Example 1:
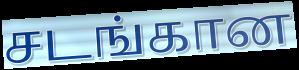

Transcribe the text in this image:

சடங்கான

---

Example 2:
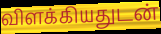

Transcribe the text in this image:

விளக்கியதுடன்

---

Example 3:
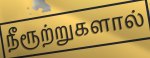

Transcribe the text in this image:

நீரூற்றுகளால்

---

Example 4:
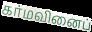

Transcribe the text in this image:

கர்மவினைப்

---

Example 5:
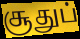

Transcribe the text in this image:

சூதுப்